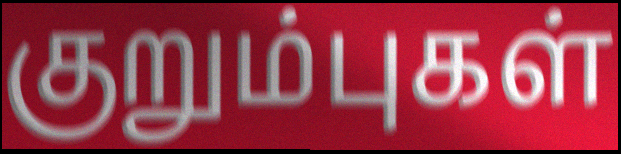
குறும்புகள்